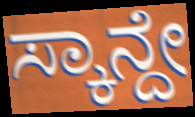
ಸ್ಕಾನ್ದೇ